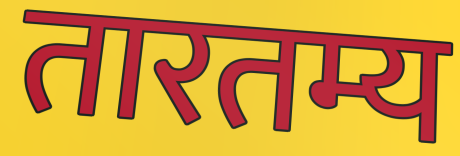
तारतम्य